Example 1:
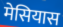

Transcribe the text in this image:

मेसियास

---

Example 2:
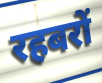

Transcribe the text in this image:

रहबरों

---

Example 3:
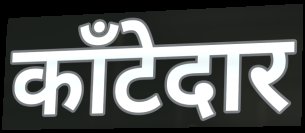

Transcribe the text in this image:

काँटेदार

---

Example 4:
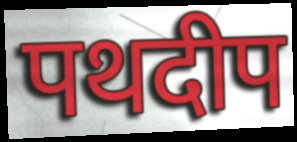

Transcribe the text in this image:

पथदीप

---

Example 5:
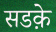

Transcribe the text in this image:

सडक़े